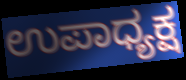
ಉಪಾಧ್ಯಕ್ಷ